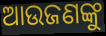
ଆଉଜଣଙ୍କୁ